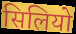
सिलियो